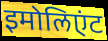
इमोलिएंट